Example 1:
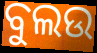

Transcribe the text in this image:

ବୁଲଉ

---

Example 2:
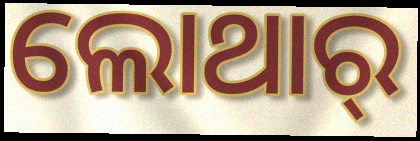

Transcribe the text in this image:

ଲୋଥାର୍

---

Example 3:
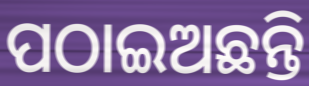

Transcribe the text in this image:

ପଠାଇଅଛନ୍ତି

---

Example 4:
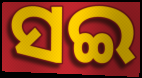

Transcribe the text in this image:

ସଇ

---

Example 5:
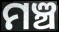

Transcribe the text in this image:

ମଞ୍ଚ